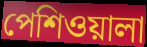
পেশিওয়ালা